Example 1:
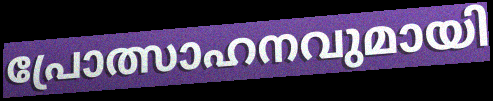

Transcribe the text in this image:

പ്രോത്സാഹനവുമായി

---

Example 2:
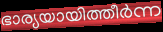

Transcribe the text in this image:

ഭാര്യയായിത്തീർന്ന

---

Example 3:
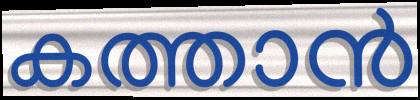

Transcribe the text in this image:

കത്താൻ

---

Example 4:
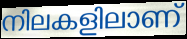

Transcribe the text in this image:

നിലകളിലാണ്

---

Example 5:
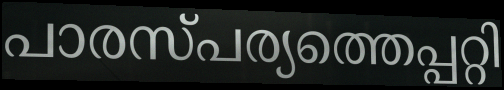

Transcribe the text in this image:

പാരസ്പര്യത്തെപ്പറ്റി